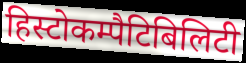
हिस्टोकम्पैटिबिलिटी